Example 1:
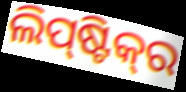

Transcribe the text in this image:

ଲିପ୍‌ଷ୍ଟିକ୍‌ର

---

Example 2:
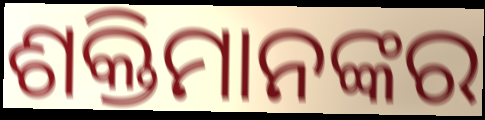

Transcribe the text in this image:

ଶକ୍ତିମାନଙ୍କର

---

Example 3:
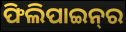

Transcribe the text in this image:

ଫିଲିପାଇନ୍‌ର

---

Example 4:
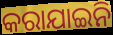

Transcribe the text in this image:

କରାଯାଇନି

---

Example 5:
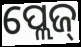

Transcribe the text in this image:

ପ୍ଲେଜ୍